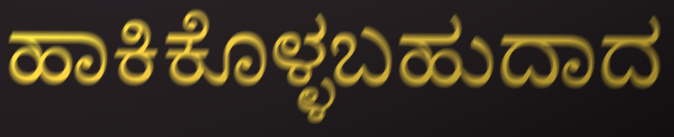
ಹಾಕಿಕೊಳ್ಳಬಹುದಾದ